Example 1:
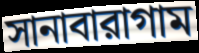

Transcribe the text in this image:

সানাবারাগাম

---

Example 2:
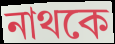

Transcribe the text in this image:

নাথকে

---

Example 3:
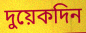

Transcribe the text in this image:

দুয়েকদিন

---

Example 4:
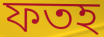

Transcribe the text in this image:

ফতহ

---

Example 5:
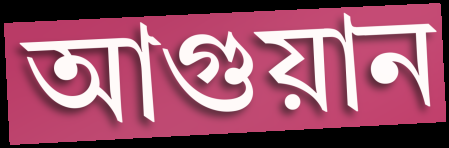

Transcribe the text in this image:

আগুয়ান